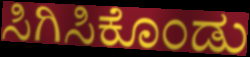
ಸಿಗಿಸಿಕೊಂಡು